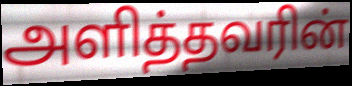
அளித்தவரின்